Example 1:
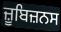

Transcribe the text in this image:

ਜ਼ੂਬਿਜ਼ਨਸ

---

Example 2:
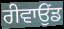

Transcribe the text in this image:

ਰੀਵਾਉਂਡ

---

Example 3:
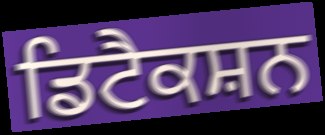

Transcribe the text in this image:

ਡਿਟੈਕਸ਼ਨ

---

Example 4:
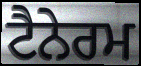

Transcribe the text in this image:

ਟੈਨੇਰਮ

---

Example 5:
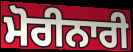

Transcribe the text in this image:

ਮੋਰੀਨਾਰੀ